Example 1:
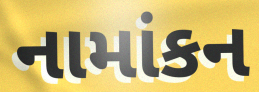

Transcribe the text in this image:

નામાંકન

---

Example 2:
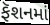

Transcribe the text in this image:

ફૅશનમાં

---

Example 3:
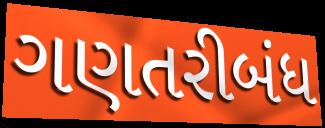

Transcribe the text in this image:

ગણતરીબંધ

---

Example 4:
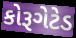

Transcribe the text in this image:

કોરૂગેટેડ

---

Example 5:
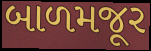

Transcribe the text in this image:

બાળમજૂર